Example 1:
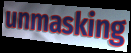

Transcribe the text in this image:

unmasking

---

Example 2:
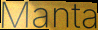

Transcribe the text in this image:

Manta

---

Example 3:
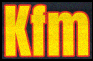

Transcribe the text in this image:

Kfm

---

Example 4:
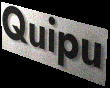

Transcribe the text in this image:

Quipu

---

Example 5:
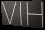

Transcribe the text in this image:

VIH